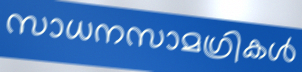
സാധനസാമഗ്രികൾ